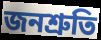
জনশ্রুতি